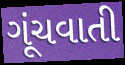
ગૂંચવાતી